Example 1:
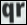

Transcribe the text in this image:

qr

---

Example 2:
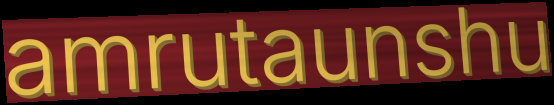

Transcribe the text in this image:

amrutaunshu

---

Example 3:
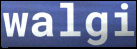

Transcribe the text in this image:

walgi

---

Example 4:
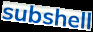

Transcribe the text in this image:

subshell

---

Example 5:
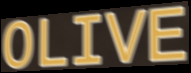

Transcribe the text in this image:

OLIVE